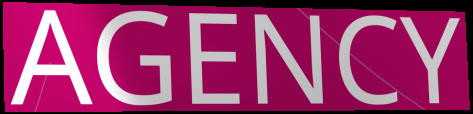
AGENCY